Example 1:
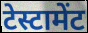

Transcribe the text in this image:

टेस्टामेंट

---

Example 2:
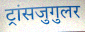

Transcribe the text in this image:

ट्रांसजुगुलर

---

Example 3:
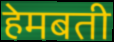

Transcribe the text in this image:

हेमबती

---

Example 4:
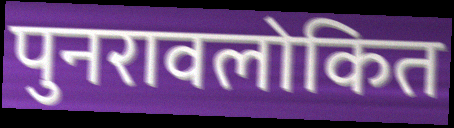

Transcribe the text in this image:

पुनरावलोकित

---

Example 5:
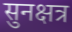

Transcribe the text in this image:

सुनक्षत्र